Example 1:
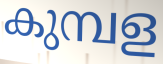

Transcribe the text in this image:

കുമ്പള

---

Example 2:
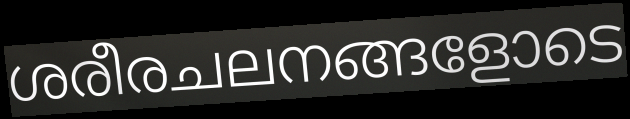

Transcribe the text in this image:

ശരീരചലനങ്ങളോടെ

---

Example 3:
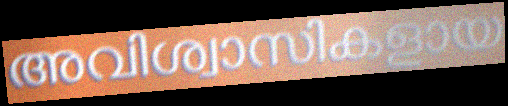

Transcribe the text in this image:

അവിശ്വാസികളായ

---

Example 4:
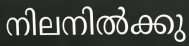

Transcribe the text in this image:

നിലനിൽക്കു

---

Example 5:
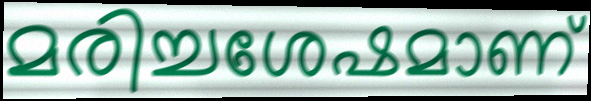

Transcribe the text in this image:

മരിച്ചശേഷമാണ്